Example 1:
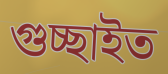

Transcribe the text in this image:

গুচ্ছাইত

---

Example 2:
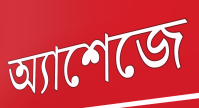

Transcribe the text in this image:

অ্যাশেজে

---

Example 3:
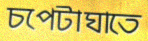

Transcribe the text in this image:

চপেটাঘাতে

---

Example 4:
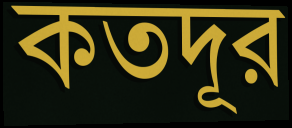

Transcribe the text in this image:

কতদূর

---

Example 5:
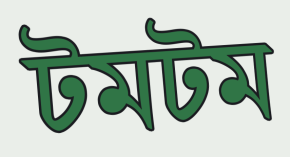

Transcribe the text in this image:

টমটম